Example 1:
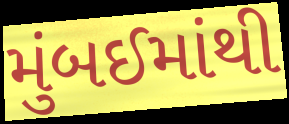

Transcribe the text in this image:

મુંબઈમાંથી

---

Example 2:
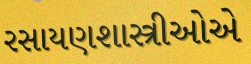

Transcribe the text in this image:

રસાયણશાસ્ત્રીઓએ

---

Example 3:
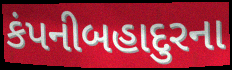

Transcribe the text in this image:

કંપનીબહાદુરના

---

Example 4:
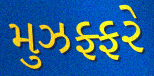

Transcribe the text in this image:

મુઝફ્ફરે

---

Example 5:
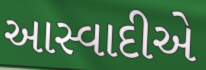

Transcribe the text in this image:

આસ્વાદીએ